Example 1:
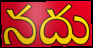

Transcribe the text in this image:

నదు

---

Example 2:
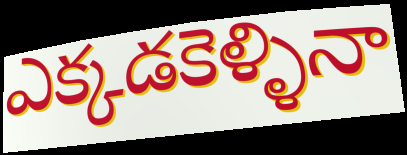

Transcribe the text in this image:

ఎక్కడకెళ్ళినా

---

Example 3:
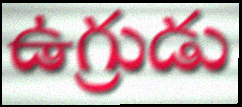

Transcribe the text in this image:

ఉగ్రుడు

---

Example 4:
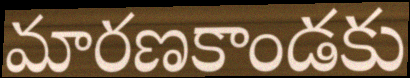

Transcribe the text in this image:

మారణకాండకు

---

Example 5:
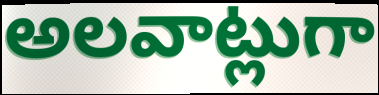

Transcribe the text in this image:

అలవాట్లుగా